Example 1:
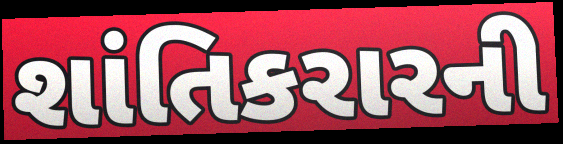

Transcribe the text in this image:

શાંતિકરારની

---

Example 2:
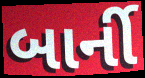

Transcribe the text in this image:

બાર્ની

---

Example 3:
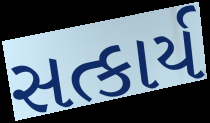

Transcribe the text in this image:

સત્કાર્ય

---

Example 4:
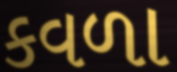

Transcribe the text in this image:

કવળા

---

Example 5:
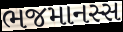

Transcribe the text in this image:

ભજમાનસ્સ